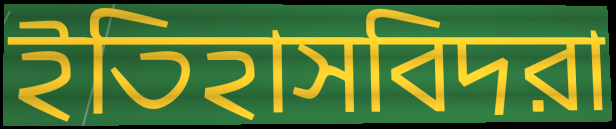
ইতিহাসবিদরা